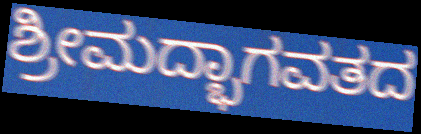
ಶ್ರೀಮದ್ಭಾಗವತದ